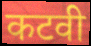
कटवी